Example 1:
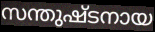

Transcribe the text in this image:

സന്തുഷ്ടനായ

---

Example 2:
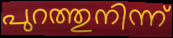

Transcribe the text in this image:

പുറത്തുനിന്ന്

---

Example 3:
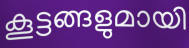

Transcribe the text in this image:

കൂട്ടങ്ങളുമായി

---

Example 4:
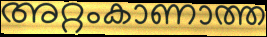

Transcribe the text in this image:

അറ്റംകാണാത്ത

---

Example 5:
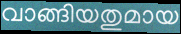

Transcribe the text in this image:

വാങ്ങിയതുമായ